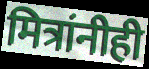
मित्रांनीही